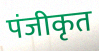
पंजीकृत